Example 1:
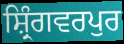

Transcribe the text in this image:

ਸ਼੍ਰਿੰਗਵਰਪੁਰ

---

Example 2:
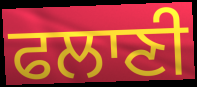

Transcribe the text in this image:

ਫਲਾਣੀ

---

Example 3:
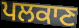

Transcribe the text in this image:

ਪਲਕਾਣ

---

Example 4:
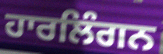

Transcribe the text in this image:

ਹਾਰਲਿੰਗਨ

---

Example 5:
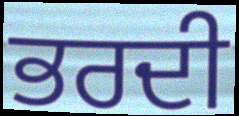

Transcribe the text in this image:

ਭਰਦੀ